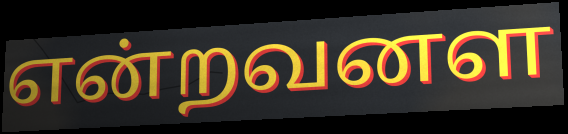
என்றவனள